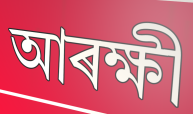
আৰক্ষী